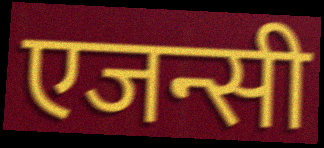
एजन्सी